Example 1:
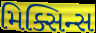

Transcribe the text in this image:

મિક્સિન્સ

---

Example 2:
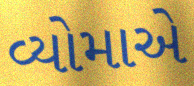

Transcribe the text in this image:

વ્યોમાએ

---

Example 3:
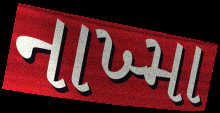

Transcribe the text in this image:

નાખ્મા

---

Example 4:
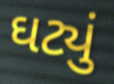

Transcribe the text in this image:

ઘટ્યું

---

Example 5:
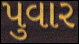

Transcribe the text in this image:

પુવાર